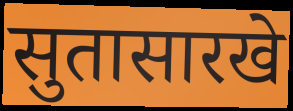
सुतासारखे